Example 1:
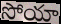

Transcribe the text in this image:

సోయా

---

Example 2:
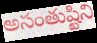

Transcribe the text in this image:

అసంతుష్టిని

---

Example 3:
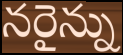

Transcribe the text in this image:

నరైన్ను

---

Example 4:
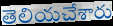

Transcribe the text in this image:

తెలియచేశారు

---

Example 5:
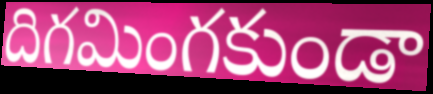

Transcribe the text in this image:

దిగమింగకుండా